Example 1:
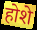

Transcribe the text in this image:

होशे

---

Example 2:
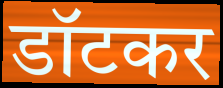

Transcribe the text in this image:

डॉटकर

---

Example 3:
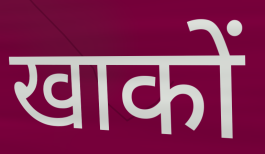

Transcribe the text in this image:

खाकों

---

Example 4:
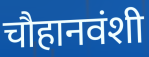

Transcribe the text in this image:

चौहानवंशी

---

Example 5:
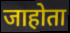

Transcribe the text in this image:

जाहोता